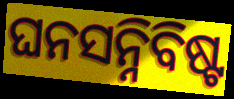
ଘନସନ୍ନିବିଷ୍ଟ